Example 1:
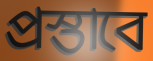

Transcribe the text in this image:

প্রস্তাবে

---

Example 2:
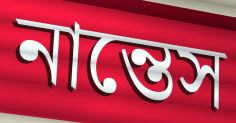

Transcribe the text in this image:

নান্তেস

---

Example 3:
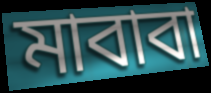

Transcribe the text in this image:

মাবাবা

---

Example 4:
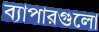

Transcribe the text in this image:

ব্যাপারগুলো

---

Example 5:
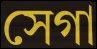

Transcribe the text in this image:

সেগা